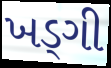
ખડ્ગી